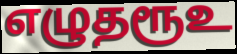
எழுதரூஉ